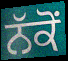
ਨੱਕੋਂ